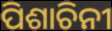
ପିଶାଚିନୀ